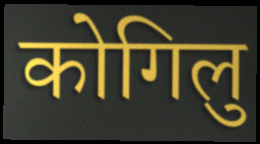
कोगिलु